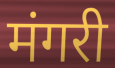
मंगरी